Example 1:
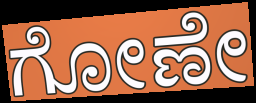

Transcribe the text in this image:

ಗೋಣೇ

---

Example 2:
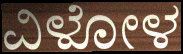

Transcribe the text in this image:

ವಿಳೋಳ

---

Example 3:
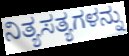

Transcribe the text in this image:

ನಿತ್ಯಸತ್ಯಗಳನ್ನು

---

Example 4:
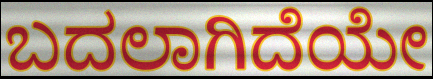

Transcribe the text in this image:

ಬದಲಾಗಿದೆಯೇ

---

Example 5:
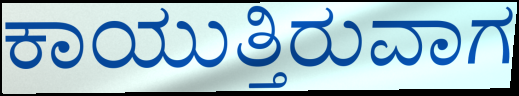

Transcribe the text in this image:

ಕಾಯುತ್ತಿರುವಾಗ